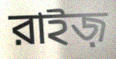
রাইজ়